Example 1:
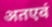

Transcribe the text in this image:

अतएवं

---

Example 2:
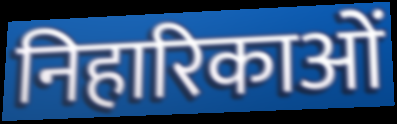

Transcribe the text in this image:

निहारिकाओं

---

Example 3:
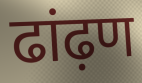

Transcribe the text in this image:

ढांढ़ण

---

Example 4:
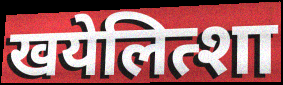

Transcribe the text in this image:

खयेलित्शा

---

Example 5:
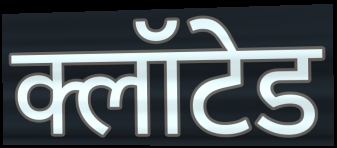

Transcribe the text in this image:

क्लॉटेड